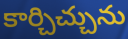
కార్చిచ్చును